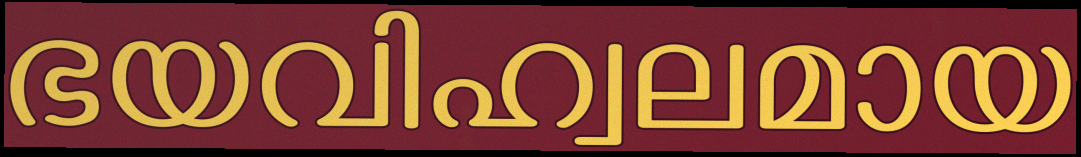
ഭയവിഹ്വലമായ